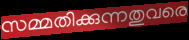
സമ്മതിക്കുന്നതുവരെ